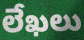
లేఖలు